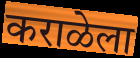
कराळेला